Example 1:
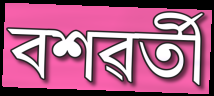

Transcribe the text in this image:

বশৱৰ্তী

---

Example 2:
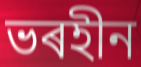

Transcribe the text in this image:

ভৰহীন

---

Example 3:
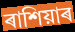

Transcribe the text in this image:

ৰাশিয়াৰ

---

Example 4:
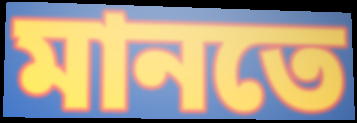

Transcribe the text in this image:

মানতে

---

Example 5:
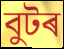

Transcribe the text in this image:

বুটৰ